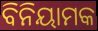
ବିନିୟାମକ